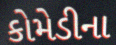
કોમેડીના